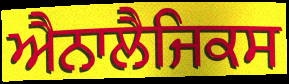
ਐਨਾਲੈਜਿਕਸ